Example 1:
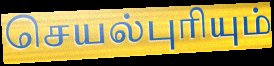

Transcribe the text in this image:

செயல்புரியும்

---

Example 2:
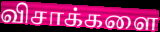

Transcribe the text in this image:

விசாக்களை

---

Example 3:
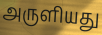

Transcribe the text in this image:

அருளியது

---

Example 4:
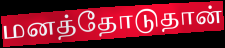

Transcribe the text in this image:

மனத்தோடுதான்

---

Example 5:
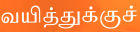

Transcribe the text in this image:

வயித்துக்குச்